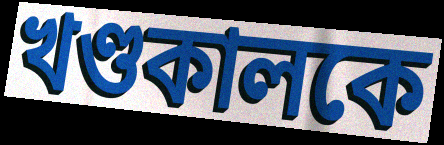
খণ্ডকালকে